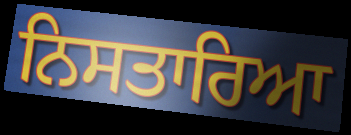
ਨਿਸਤਾਰਿਆ